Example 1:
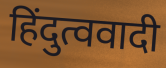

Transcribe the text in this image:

हिंदुत्ववादी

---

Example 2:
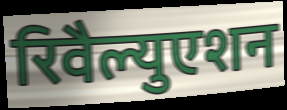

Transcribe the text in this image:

रिवैल्युएशन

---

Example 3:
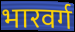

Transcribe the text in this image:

भारवर्ग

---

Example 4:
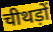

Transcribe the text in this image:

चीथड़ों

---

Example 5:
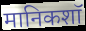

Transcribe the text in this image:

मानिकशॉ